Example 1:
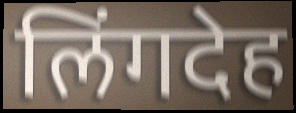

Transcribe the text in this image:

लिंगदेह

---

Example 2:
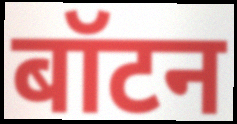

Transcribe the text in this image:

बॉटन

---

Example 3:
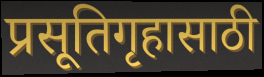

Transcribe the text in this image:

प्रसूतिगृहासाठी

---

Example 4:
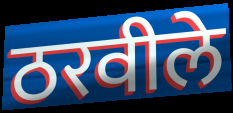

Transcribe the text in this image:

ठरवीले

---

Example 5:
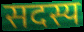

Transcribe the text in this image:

सदस्‍य